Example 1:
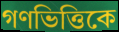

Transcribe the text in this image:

গণভিত্তিকে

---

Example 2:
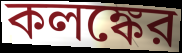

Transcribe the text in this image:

কলঙ্কের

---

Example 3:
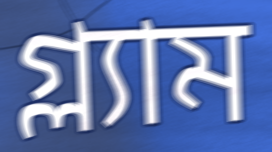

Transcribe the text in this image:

গ্ল্যাম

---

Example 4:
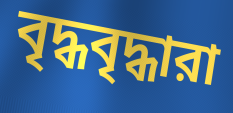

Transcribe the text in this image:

বৃদ্ধবৃদ্ধারা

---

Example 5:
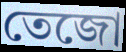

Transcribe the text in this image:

তেজো